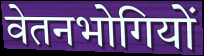
वेतनभोगियों